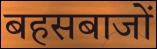
बहसबाजों